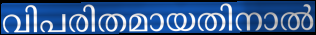
വിപരിതമായതിനാൽ